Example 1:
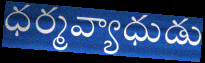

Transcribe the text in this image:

ధర్మవ్యాధుడు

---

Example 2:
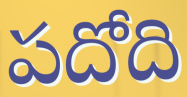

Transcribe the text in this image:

పదోది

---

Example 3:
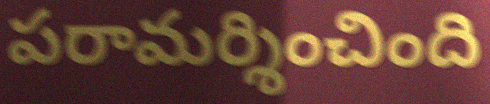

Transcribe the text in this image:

పరామర్శించింది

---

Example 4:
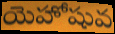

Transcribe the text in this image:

యెహోషువ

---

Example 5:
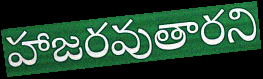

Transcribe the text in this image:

హాజరవుతారని